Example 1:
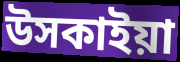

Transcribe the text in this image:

উসকাইয়া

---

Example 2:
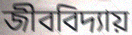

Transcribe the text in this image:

জীববিদ্যায়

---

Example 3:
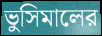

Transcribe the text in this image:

ভুসিমালের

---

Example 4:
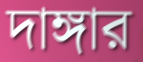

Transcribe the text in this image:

দাঙ্গার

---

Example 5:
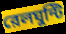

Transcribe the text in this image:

রেলঘুন্টি